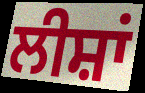
ਲੀਸ਼ਾਂ